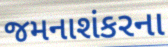
જમનાશંકરના